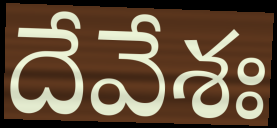
దేవేశః